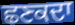
ਛਣਕਦਾ